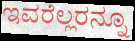
ಇವರೆಲ್ಲರನ್ನೂ